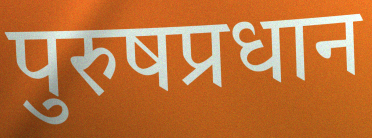
पुरुषप्रधान